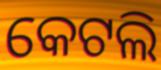
କେଟଲି